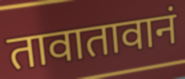
तावातावानं